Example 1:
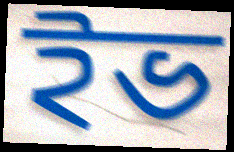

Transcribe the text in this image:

ইভ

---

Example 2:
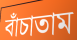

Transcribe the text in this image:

বাঁচাতাম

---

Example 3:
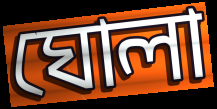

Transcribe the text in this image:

ঘোলা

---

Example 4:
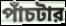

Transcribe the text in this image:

পাঁচটার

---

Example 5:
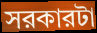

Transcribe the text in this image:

সরকারটা